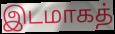
இடமாகத்